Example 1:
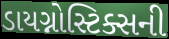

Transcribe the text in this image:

ડાયગ્નોસ્ટિક્સની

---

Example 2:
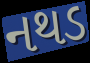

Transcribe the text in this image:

નથડ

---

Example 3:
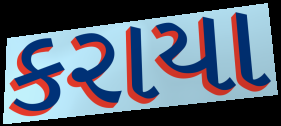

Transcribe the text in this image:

કરાયા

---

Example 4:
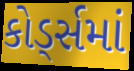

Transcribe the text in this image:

કોર્ડ્સમાં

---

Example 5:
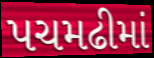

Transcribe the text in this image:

પચમઢીમાં